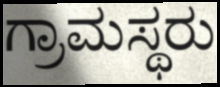
ಗ್ರಾಮಸ್ಥರು